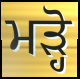
ਮੜ੍ਹੋ